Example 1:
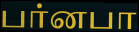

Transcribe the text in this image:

பர்னபா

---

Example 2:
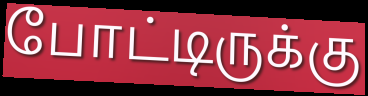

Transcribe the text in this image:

போட்டிருக்கு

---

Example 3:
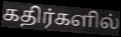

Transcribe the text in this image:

கதிர்களில்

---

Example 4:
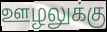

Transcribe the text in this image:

ஊழலுக்கு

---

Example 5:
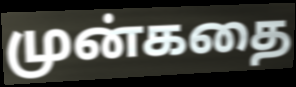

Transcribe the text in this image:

முன்கதை